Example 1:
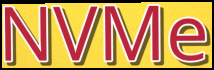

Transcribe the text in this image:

NVMe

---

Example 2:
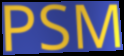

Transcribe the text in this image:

PSM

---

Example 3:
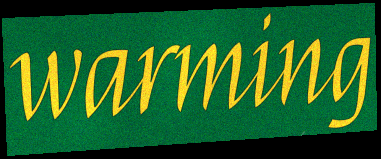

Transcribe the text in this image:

warming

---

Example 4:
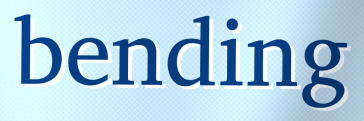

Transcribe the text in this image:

bending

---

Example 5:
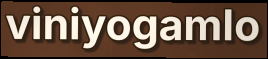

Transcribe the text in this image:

viniyogamlo